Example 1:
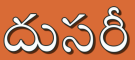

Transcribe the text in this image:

దుసరీ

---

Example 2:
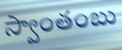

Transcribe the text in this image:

స్వాంతంబు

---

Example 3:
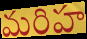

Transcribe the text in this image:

మరిహ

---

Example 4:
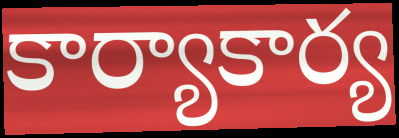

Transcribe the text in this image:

కార్యాకార్య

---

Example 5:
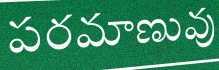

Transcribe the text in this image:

పరమాణువు